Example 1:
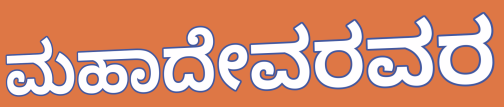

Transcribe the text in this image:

ಮಹಾದೇವರವರ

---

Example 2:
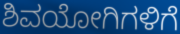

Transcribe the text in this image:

ಶಿವಯೋಗಿಗಳಿಗೆ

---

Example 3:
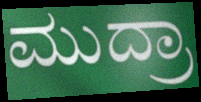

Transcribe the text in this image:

ಮುದ್ರಾ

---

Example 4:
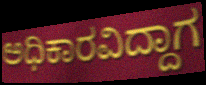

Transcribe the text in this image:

ಅಧಿಕಾರವಿದ್ದಾಗ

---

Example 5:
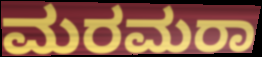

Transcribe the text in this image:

ಮರಮರಾ